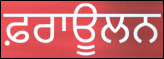
ਫ਼ਰਾਊਲਨ